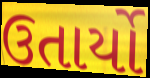
ઉતાર્યો